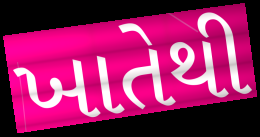
ખાતેથી